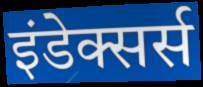
इंडेक्सर्स